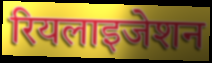
रियलाइजेशन